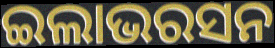
ଇଲାଭରସନ